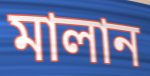
মালান